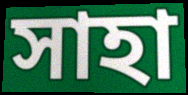
সাহা